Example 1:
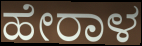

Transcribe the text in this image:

ಹೇರಾಳ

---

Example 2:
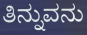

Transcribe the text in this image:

ತಿನ್ನುವನು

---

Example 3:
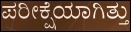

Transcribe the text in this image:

ಪರೀಕ್ಷೆಯಾಗಿತ್ತು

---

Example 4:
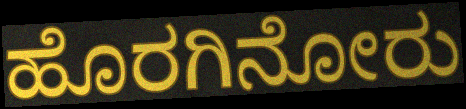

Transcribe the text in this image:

ಹೊರಗಿನೋರು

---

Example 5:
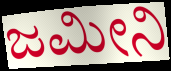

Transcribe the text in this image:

ಜಮೀನಿ